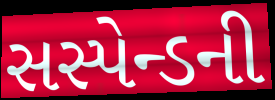
સસ્પેન્ડની